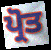
ਪ੍ਰੋਤ